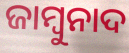
ଜାମ୍ବୁନାଦ